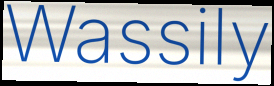
Wassily